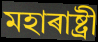
মহাৰাষ্ট্ৰী